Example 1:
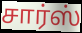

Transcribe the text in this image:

சார்ஸ்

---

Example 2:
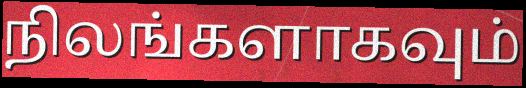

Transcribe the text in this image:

நிலங்களாகவும்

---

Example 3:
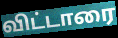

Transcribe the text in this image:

விட்டாரை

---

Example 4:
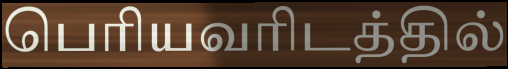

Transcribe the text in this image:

பெரியவரிடத்தில்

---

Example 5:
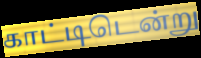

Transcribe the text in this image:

காட்டிடென்று